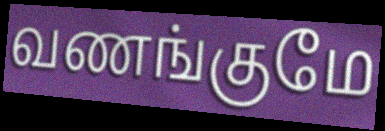
வணங்குமே